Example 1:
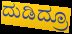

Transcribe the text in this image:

ದುಡಿದ್ರೂ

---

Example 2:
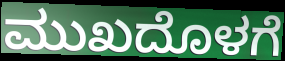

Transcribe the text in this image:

ಮುಖದೊಳಗೆ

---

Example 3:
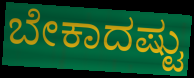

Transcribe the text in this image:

ಬೇಕಾದಷ್ಟು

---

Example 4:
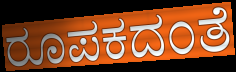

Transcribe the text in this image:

ರೂಪಕದಂತೆ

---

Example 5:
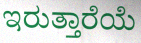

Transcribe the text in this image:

ಇರುತ್ತಾರೆಯೆ